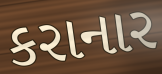
કરાનાર